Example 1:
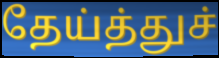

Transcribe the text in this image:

தேய்த்துச்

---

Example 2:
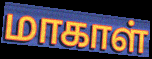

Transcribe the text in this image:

மாகாள்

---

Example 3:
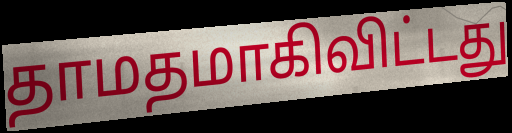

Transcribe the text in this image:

தாமதமாகிவிட்டது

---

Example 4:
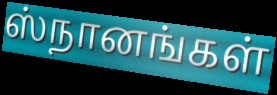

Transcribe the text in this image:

ஸ்நானங்கள்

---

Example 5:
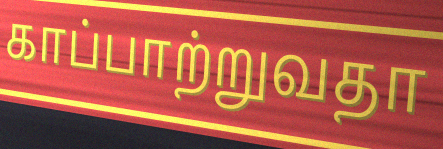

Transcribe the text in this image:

காப்பாற்றுவதா